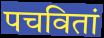
पचवितां